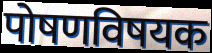
पोषणविषयक